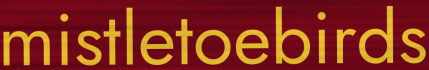
mistletoebirds